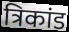
त्रिकांड